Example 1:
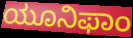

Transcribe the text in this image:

ಯೂನಿಫಾಂ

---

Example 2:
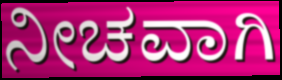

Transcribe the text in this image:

ನೀಚವಾಗಿ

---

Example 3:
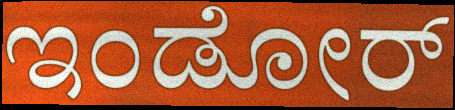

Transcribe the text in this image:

ಇಂಡೋರ್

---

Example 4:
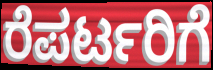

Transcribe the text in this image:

ರೆಪರ್ಟರಿಗೆ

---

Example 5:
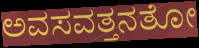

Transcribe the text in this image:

ಅವಸವತ್ತನತೋ